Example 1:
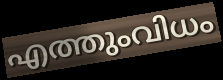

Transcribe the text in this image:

എത്തുംവിധം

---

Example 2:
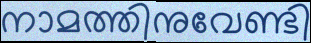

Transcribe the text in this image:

നാമത്തിനുവേണ്ടി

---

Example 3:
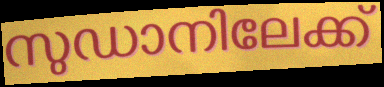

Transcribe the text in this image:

സുഡാനിലേക്ക്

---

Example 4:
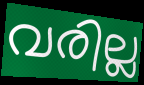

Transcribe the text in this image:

വരില്ല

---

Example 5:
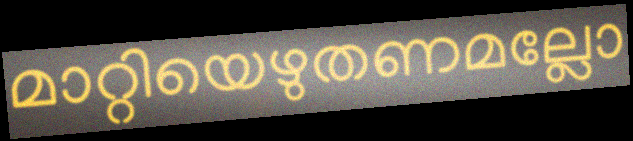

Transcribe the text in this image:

മാറ്റിയെഴുതണമല്ലോ